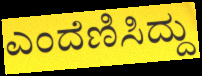
ಎಂದೆಣಿಸಿದ್ದು